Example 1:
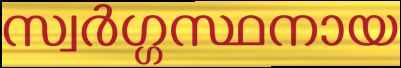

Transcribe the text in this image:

സ്വർഗ്ഗസ്ഥനായ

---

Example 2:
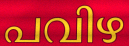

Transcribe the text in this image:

പവിഴ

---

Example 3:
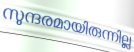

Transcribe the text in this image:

സുന്ദരമായിരുന്നില്ല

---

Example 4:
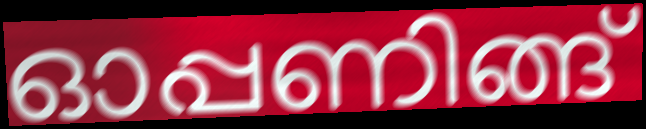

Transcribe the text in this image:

ഓപ്പണിങ്ങ്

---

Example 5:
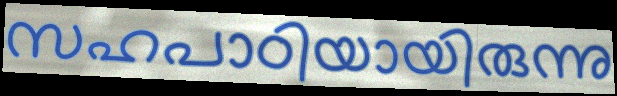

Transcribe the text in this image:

സഹപാഠിയായിരുന്നു